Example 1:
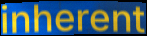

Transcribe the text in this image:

inherent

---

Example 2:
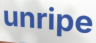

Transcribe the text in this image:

unripe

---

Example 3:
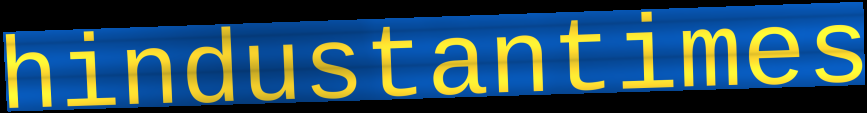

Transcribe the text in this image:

hindustantimes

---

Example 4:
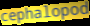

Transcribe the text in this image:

cephalopod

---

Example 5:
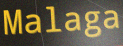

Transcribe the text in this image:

Malaga